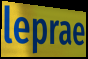
leprae